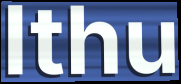
Ithu